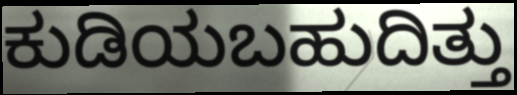
ಕುಡಿಯಬಹುದಿತ್ತು